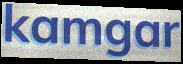
kamgar